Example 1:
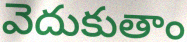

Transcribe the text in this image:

వెదుకుతాం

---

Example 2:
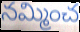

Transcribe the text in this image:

నమ్మించ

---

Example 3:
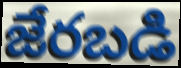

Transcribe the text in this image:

జేరబడి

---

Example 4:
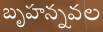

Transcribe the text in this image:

బృహన్నవల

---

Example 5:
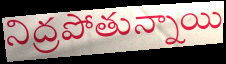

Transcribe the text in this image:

నిద్రపోతున్నాయి